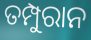
ତମ୍ପୁରାନ